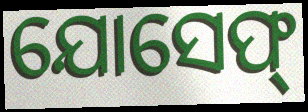
ଯୋସେଫ୍